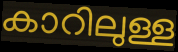
കാറിലുള്ള